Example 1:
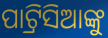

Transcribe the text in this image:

ପାଟ୍ରିସିଆଙ୍କୁ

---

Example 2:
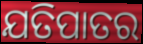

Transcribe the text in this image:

ଯତିପାତର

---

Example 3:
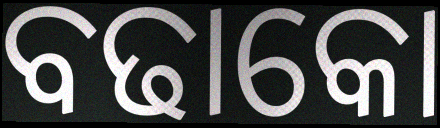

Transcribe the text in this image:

ବଢାକୋ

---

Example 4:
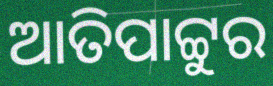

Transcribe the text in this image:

ଆତିପାଟ୍ଟୁର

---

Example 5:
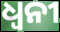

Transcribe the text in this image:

ଧ୍ୱନୀ